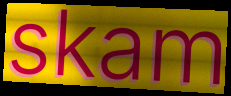
skam